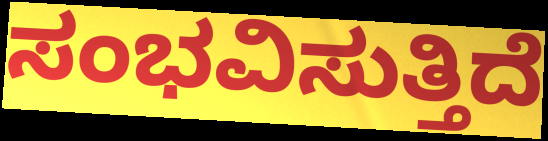
ಸಂಭವಿಸುತ್ತಿದೆ